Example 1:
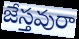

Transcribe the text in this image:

జేస్తవురా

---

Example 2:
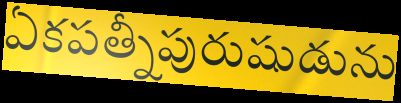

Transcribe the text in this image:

ఏకపత్నీపురుషుడును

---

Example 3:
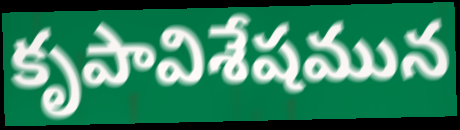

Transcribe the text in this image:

కృపావిశేషమున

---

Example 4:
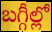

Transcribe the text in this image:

బగ్గీల్లో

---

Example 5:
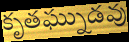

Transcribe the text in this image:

కృతఘ్నుడవు